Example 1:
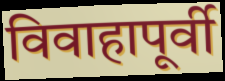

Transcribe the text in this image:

विवाहापूर्वी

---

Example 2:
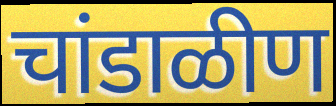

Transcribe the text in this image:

चांडाळीण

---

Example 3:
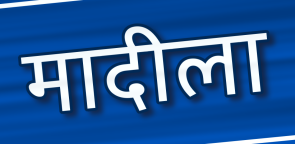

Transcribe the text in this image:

मादीला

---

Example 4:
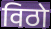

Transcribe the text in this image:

विठो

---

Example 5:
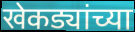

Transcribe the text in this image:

खेकड्यांच्या